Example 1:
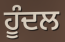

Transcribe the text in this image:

ਹੂੰਦਲ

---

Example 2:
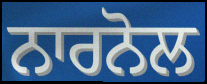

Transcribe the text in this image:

ਨਾਰਨੋਲ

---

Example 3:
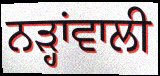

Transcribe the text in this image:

ਨੜ੍ਹਾਂਵਾਲੀ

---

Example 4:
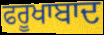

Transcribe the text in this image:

ਫਰੂਖਾਬਾਦ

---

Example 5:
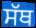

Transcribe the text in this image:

ਸੱਥ